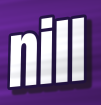
nill